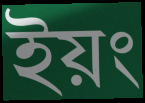
ইয়ং